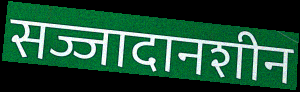
सज्जादानशीन